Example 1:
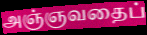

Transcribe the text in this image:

அஞ்ஞவதைப்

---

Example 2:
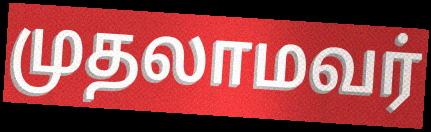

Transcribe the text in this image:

முதலாமவர்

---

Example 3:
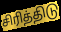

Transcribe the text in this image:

சிரித்திடு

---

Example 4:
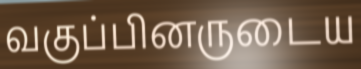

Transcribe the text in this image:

வகுப்பினருடைய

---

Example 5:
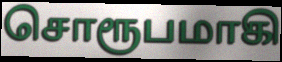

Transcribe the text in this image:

சொரூபமாகி